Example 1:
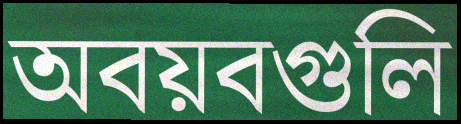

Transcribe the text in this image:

অবয়বগুলি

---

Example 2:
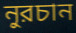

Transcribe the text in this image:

নুরচান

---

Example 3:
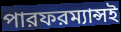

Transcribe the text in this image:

পারফরম্যান্সই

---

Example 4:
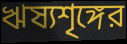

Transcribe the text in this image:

ঋষ্যশৃঙ্গের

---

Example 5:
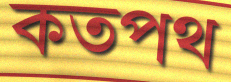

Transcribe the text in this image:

কতপথ